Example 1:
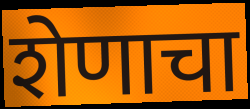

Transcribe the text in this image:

शेणाचा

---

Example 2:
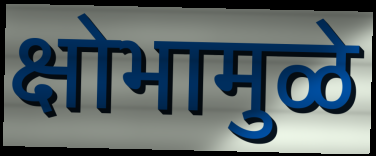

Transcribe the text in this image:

क्षोभामुळे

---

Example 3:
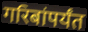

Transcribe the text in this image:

गरिबांपर्यंत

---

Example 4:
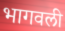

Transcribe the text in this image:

भागवली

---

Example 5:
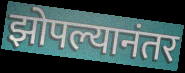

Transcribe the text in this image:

झोपल्यानंतर